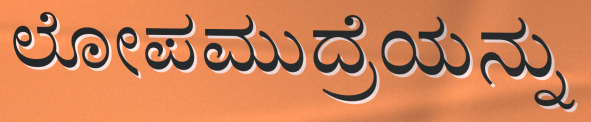
ಲೋಪಮುದ್ರೆಯನ್ನು